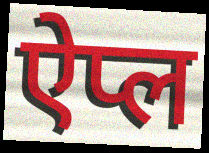
ऐप्ल